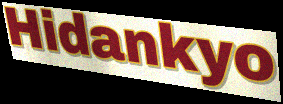
Hidankyo